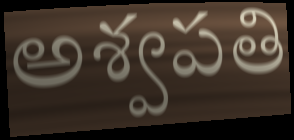
అశ్వపతి